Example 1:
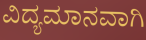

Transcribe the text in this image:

ವಿದ್ಯಮಾನವಾಗಿ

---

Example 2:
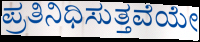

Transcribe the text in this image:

ಪ್ರತಿನಿಧಿಸುತ್ತವೆಯೇ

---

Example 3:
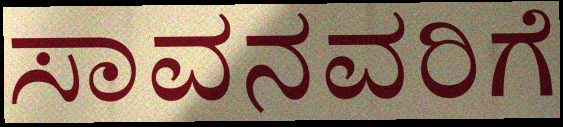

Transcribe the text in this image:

ಸಾವನವರಿಗೆ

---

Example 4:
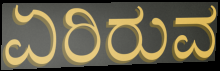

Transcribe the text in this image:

ಏರಿರುವ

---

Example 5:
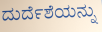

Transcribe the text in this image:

ದುರ್ದೆಶೆಯನ್ನು